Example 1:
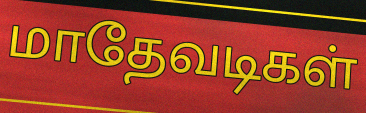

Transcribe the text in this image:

மாதேவடிகள்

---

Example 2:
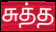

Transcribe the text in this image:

சுத்த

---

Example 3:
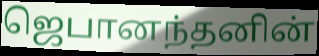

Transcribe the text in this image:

ஜெபானந்தனின்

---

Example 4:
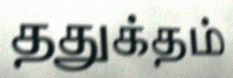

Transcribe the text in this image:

ததுக்தம்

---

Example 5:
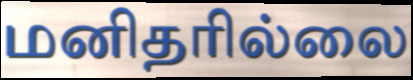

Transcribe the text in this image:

மனிதரில்லை